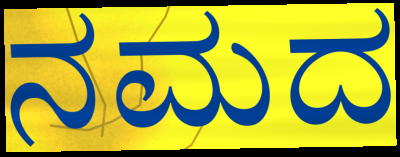
ನಮದ